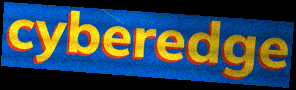
cyberedge